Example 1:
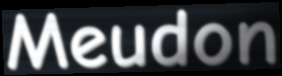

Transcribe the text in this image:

Meudon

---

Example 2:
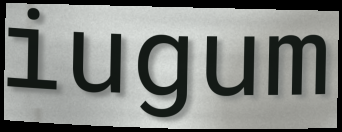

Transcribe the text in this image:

iugum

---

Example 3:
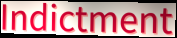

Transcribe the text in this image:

Indictment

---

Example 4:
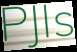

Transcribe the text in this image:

PJIs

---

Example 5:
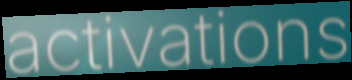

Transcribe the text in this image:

activations